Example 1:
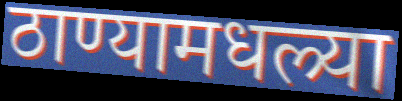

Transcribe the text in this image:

ठाण्यामधल्या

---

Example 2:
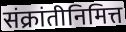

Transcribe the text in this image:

संक्रांतीनिमित्त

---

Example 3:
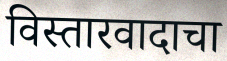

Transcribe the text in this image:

विस्तारवादाचा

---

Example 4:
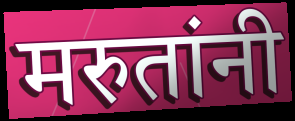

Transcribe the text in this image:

मरुतांनी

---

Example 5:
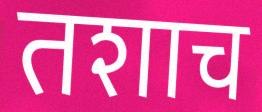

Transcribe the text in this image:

तशाच